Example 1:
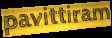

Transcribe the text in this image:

pavittiram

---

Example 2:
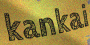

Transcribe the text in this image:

kankai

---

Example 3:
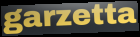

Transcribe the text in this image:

garzetta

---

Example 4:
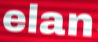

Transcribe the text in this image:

elan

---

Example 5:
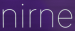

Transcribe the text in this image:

nirne